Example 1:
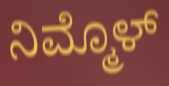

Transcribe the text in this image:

ನಿಮ್ಮೊಳ್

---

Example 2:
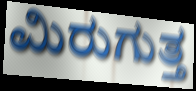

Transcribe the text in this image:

ಮಿರುಗುತ್ತ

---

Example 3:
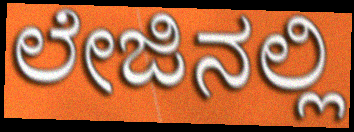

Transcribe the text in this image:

ಲೇಜಿನಲ್ಲಿ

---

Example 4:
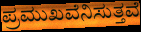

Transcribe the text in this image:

ಪ್ರಮುಖವೆನಿಸುತ್ತವೆ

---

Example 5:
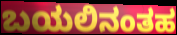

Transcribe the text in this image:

ಬಯಲಿನಂತಹ